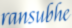
ransubhe